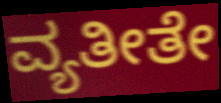
ವ್ಯತೀತೇ